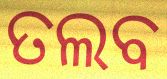
ତଲବ